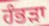
ਹੰਭੜਾ